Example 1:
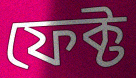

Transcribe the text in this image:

ফেক্ট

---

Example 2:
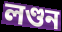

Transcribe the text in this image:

লণ্ডন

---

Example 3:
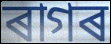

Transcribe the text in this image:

ৰাগৰ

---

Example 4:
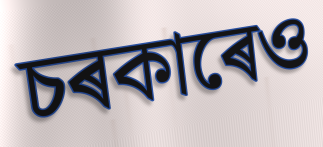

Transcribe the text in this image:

চৰকাৰেও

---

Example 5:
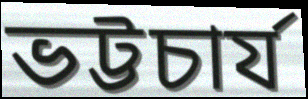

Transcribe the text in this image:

ভট্টচাৰ্য